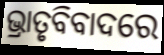
ଭ୍ରାତୃବିବାଦରେ